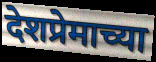
देशप्रेमाच्या